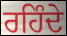
ਰਹਿੰਦੇ